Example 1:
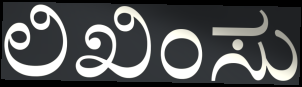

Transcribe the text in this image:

ಲಿಖಿಂಸು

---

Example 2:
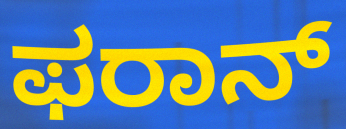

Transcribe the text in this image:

ಫರಾನ್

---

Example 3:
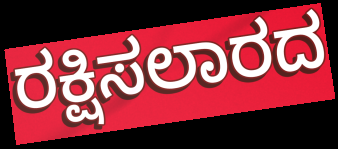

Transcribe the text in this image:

ರಕ್ಷಿಸಲಾರದ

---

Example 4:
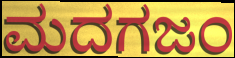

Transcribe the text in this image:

ಮದಗಜಂ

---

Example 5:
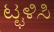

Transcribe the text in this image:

ಟ್ಟಳಿಸಿ